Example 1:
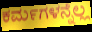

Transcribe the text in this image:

ಕರ್ಮಗಳನ್ನೆಲ್ಲ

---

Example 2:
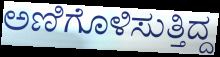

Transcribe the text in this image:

ಅಣಿಗೊಳಿಸುತ್ತಿದ್ದ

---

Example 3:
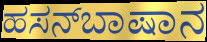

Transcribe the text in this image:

ಹಸನ್‌ಬಾಷಾನ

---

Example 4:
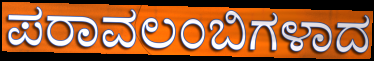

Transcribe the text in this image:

ಪರಾವಲಂಬಿಗಳಾದ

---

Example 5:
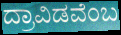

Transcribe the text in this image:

ದ್ರಾವಿಡವೆಂಬ